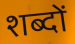
शब्दों